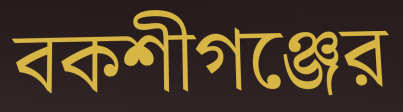
বকশীগঞ্জের